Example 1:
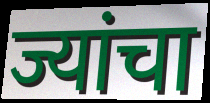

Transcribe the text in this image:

ज्यांचा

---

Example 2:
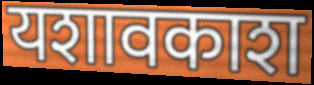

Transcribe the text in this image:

यशावकाश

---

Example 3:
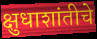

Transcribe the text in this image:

क्षुधाशांतीचे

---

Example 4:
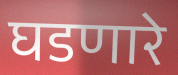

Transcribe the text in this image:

घडणारे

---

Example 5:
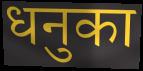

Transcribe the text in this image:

धनुका